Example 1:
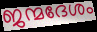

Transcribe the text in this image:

ജന്മദേശം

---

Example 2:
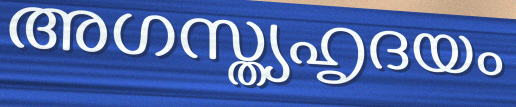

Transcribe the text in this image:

അഗസ്ത്യഹൃദയം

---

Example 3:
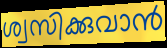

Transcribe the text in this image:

ശ്വസിക്കുവാൻ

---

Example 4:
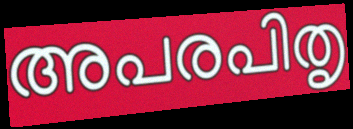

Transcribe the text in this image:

അപരപിതൃ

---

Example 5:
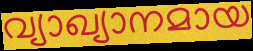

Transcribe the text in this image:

വ്യാഖ്യാനമായ